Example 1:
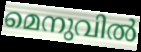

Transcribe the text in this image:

മെനുവിൽ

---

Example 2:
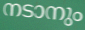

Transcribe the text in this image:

നടാനും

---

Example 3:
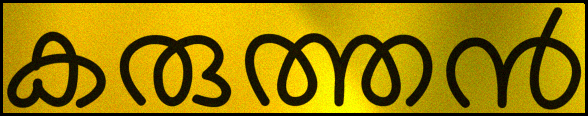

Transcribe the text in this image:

കരുത്തൻ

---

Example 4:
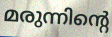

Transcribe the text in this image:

മരുന്നിന്റെ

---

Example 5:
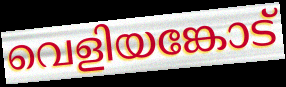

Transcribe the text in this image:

വെളിയങ്കോട്